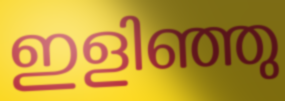
ഇളിഞ്ഞു